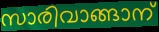
സാരിവാങ്ങാന്